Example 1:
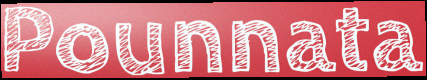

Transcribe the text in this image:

Pounnata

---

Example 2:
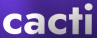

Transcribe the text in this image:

cacti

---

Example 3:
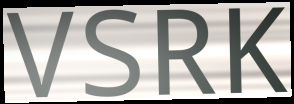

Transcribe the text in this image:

VSRK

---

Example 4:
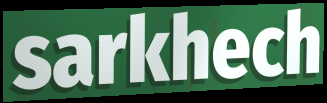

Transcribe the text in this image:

sarkhech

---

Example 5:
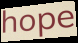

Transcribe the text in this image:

hope